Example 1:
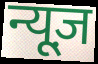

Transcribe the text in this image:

न्यूज़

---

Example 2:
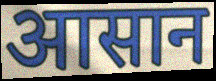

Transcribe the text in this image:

आसान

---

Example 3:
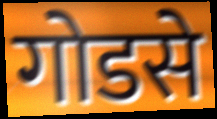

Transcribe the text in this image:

गोडसे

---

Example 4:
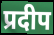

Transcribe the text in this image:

प्रदीप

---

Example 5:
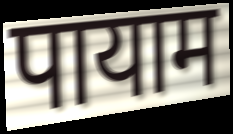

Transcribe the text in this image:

पायाम